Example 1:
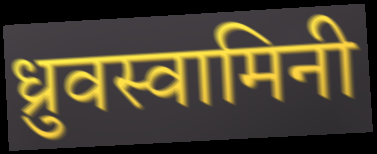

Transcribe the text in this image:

ध्रुवस्वामिनी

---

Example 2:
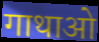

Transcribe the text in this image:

गाथाओ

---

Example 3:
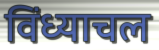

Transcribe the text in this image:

विंध्याचल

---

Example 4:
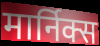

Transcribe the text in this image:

मार्निक्स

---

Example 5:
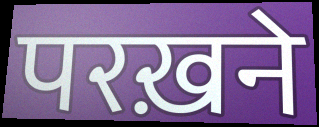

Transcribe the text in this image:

परख़ने